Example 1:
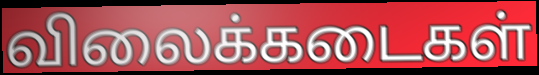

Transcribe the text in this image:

விலைக்கடைகள்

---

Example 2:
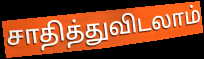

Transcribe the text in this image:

சாதித்துவிடலாம்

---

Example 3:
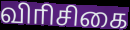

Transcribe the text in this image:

விரிசிகை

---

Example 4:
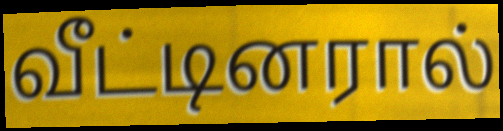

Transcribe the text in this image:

வீட்டினரால்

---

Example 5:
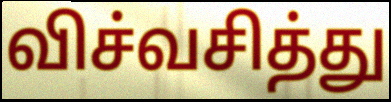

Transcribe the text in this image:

விச்வசித்து